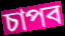
চাপব